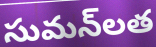
సుమన్‌లత